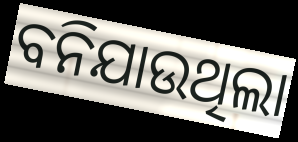
ବନିଯାଉଥିଲା